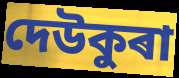
দেউকুৰা